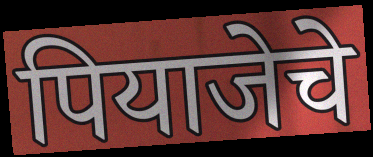
पियाजेचे